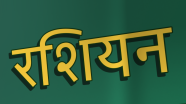
रशियन